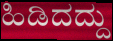
ಹಿಡಿದದ್ದು